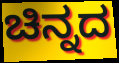
ಚಿನ್ನದ